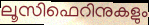
ലൂസിഫെറിനുകളും